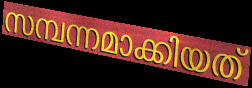
സമ്പന്നമാക്കിയത്